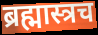
ब्रह्मास्त्रच